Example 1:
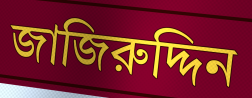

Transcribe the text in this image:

জাজিরুদ্দিন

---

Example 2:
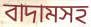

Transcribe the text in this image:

বাদামসহ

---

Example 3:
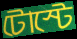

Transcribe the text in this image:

টোস্টে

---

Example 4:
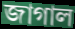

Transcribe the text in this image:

জাগাল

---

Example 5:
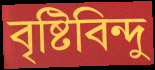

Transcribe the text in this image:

বৃষ্টিবিন্দু